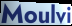
Moulvi